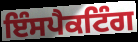
ਇੰਸਪੈਕਟਿੰਗ